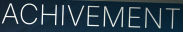
ACHIVEMENT